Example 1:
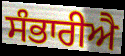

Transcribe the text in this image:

ਸੰਭਾਰੀਐ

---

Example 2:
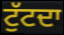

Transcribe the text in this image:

ਟੁੱਟਦਾ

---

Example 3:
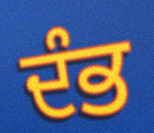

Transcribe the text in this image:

ਦੰਭ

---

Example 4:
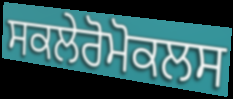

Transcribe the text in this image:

ਸਕਲੇਰੋਮੋਕਲਸ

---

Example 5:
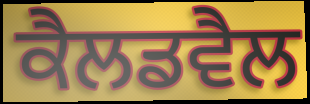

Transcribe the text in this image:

ਕੈਲਡਵੈਲ